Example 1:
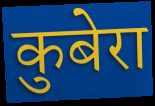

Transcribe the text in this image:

कुबेरा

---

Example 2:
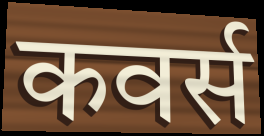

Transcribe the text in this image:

कवर्स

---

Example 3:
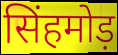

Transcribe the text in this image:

सिंहमोड़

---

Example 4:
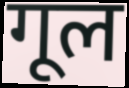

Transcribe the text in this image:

गूल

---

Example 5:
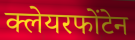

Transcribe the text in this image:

क्लेयरफोंटेन